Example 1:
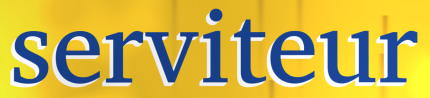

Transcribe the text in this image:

serviteur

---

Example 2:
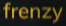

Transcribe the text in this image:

frenzy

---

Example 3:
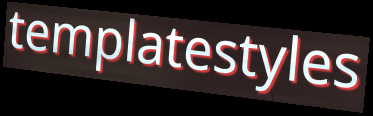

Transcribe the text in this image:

templatestyles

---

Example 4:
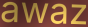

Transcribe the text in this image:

awaz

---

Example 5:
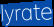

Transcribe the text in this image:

lyrate